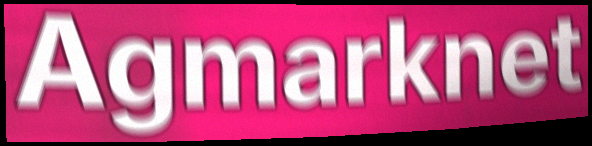
Agmarknet